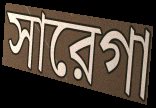
সারেগা